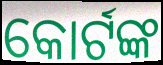
କୋର୍ଟଙ୍କ